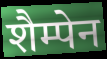
शैम्पेन